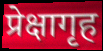
प्रेक्षागृह